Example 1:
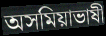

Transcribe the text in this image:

অসমিয়াভাষী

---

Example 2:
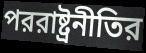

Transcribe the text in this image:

পররাষ্ট্রনীতির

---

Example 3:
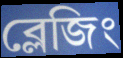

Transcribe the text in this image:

ব্লেজিং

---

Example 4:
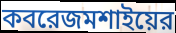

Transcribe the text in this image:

কবরেজমশাইয়ের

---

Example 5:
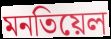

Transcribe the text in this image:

মনতিয়েল